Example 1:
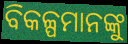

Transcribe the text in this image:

ବିକଳ୍ପମାନଙ୍କୁ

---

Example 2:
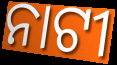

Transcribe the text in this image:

ନାଟୀ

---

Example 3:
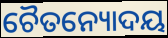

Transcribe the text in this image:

ଚୈତନ୍ୟୋଦୟ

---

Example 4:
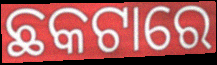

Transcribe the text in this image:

ଛକଟାରେ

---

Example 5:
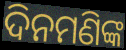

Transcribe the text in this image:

ଦିନମଣିଙ୍କ